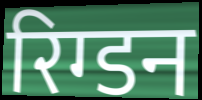
रिग्डन